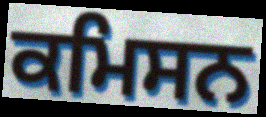
ਕਮਿਸਨ